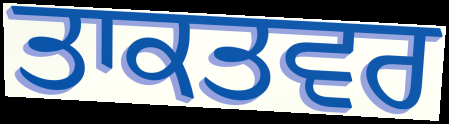
ਤਾਕਤਵਰ